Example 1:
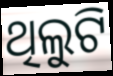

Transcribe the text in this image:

ଥିଲୁଟି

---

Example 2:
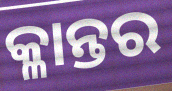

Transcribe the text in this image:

କ୍ଳାନ୍ତର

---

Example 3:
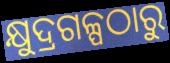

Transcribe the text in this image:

କ୍ଷୁଦ୍ରଗଳ୍ପଠାରୁ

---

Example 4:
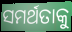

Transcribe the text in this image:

ସମର୍ଥତାକୁ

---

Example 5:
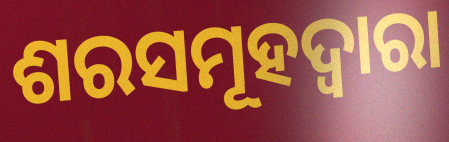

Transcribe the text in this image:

ଶରସମୂହଦ୍ୱାରା